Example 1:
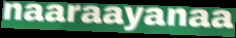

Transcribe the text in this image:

naaraayanaa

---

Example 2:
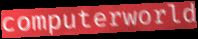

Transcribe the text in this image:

computerworld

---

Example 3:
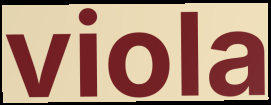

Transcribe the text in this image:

viola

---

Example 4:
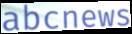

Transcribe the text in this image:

abcnews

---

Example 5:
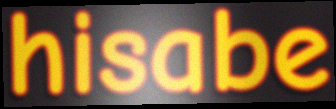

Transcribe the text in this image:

hisabe